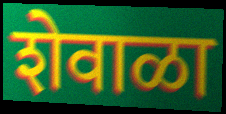
शेवाळा